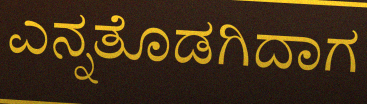
ಎನ್ನತೊಡಗಿದಾಗ